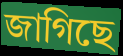
জাগিছে